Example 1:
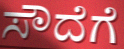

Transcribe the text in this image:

ಸೌದೆಗೆ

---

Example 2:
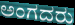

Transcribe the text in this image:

ಅಂಗದರು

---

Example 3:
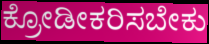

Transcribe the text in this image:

ಕ್ರೋಡೀಕರಿಸಬೇಕು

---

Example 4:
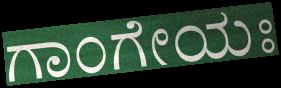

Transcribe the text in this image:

ಗಾಂಗೇಯಃ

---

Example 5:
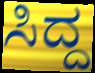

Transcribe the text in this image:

ಸಿದ್ದ